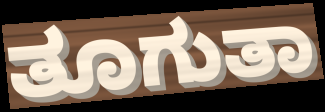
ತೂಗುತಾ